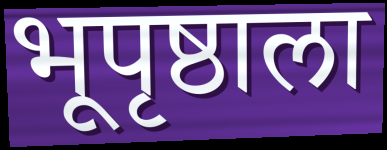
भूपृष्ठाला